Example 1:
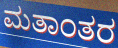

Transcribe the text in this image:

ಮತಾಂತರ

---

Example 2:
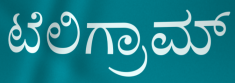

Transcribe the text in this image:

ಟೆಲಿಗ್ರಾಮ್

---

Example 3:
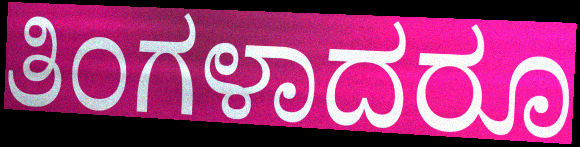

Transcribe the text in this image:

ತಿಂಗಳಾದರೂ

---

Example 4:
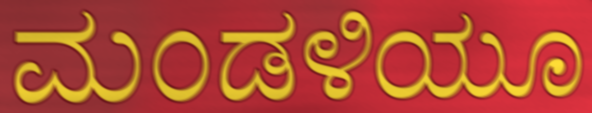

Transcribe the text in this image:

ಮಂಡಳಿಯೂ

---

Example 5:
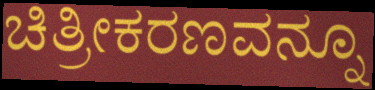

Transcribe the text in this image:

ಚಿತ್ರೀಕರಣವನ್ನೂ